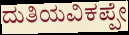
ದುತಿಯವಿಕಪ್ಪೇ